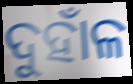
ଦୁହାଁଳ